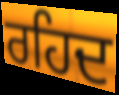
ਰਹਿਦ